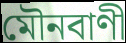
মৌনবাণী